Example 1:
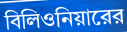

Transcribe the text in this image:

বিলিওনিয়ারের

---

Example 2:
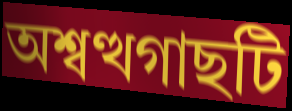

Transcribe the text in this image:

অশ্বত্থগাছটি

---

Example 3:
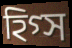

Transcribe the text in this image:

হিগ্স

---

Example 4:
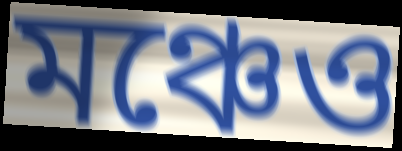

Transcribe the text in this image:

মঞ্চেও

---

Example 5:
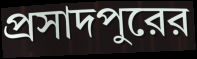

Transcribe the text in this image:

প্রসাদপুরের